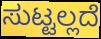
ಸುಟ್ಟಲ್ಲದೆ